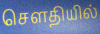
செளதியில்